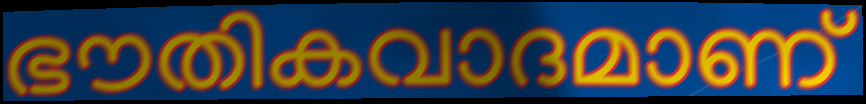
ഭൗതികവാദമാണ്